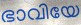
ഭാവിയേ